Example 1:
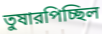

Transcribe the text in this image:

তুষারপিচ্ছিল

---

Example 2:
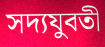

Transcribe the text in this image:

সদ্যযুবতী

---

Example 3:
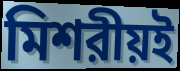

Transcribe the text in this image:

মিশরীয়ই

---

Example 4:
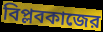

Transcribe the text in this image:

বিপ্লবকাজের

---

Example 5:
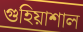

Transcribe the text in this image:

গুহিয়াশাল